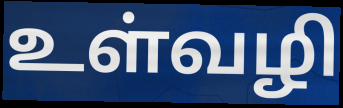
உள்வழி